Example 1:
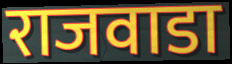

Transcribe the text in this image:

राजवाडा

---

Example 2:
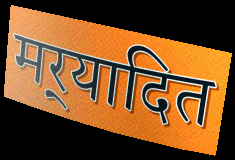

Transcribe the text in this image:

मर्यादित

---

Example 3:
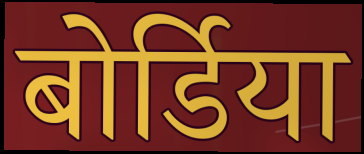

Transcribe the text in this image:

बोर्डिया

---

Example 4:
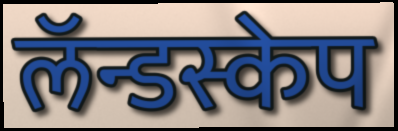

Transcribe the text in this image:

लॅन्डस्केप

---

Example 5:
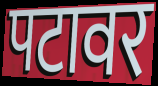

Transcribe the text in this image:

पटावर